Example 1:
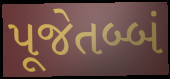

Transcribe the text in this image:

પૂજેતબ્બં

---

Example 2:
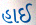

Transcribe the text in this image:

હાઈ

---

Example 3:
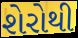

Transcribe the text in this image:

શેરોથી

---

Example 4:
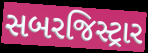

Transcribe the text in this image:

સબરજિસ્ટ્રાર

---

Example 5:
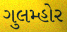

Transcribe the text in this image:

ગુલમ્હોર